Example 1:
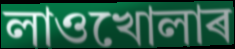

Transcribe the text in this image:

লাওখোলাৰ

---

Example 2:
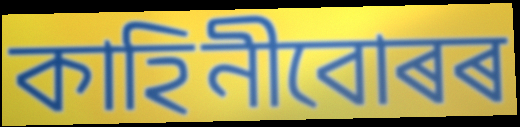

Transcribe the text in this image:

কাহিনীবোৰৰ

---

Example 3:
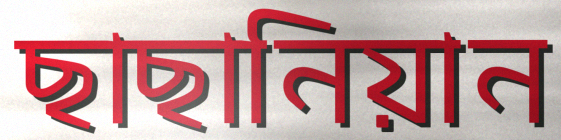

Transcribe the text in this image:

ছাছানিয়ান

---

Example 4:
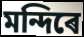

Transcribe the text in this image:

মন্দিৰে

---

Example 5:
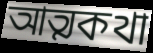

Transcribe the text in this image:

আত্মকথা